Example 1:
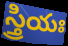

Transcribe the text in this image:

స్త్రియః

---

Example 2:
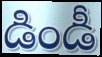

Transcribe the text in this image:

డిండీ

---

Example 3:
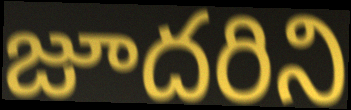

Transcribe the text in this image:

జూదరిని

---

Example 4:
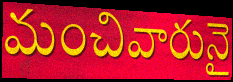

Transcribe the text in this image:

మంచివారునై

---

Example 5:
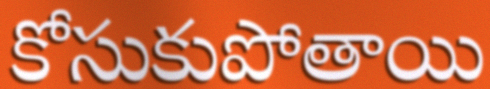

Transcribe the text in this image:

కోసుకుపోతాయి